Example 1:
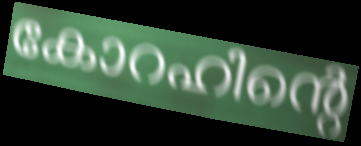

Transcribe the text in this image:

കോറഹിന്റെ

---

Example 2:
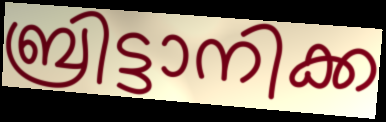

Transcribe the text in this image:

ബ്രിട്ടാനിക്ക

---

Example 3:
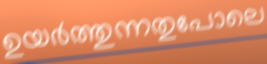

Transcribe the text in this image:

ഉയർത്തുന്നതുപോലെ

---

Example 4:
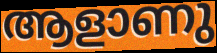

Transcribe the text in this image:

ആളാണു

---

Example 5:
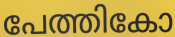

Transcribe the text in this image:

പേത്തികോ